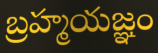
బ్రహ్మయజ్ఞం